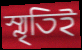
স্মৃতিই